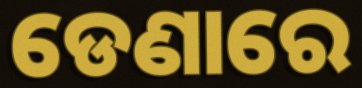
ଡେଣାରେ